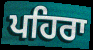
ਪਹਿਰਾ